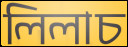
লিলাচ